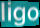
ligo